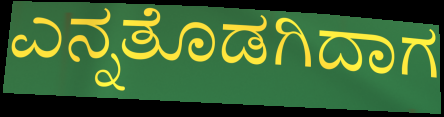
ಎನ್ನತೊಡಗಿದಾಗ